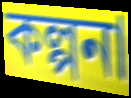
কল্পনা